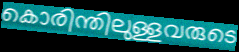
കൊരിന്തിലുള്ളവരുടെ